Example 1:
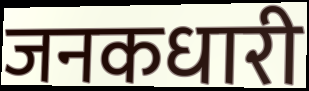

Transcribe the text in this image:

जनकधारी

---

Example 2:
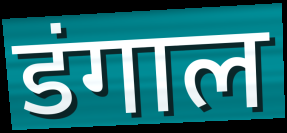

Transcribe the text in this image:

डंगाल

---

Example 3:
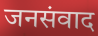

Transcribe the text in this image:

जनसंवाद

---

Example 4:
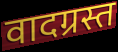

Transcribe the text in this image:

वादग्रस्त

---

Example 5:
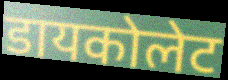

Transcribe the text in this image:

डायकोलेट